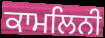
ਕਾਮਲਿਨੀ